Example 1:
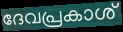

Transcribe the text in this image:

ദേവപ്രകാശ്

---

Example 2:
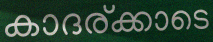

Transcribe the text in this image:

കാദര്ക്കാടെ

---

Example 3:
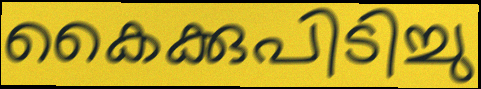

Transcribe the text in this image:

കൈക്കുപിടിച്ചു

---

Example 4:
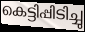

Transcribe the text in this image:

കെട്ടിപ്പിടിച്ചു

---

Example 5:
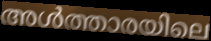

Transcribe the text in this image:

അൾത്താരയിലെ